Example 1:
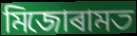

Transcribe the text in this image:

মিজোৰামত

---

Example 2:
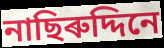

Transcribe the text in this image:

নাছিৰুদ্দিনে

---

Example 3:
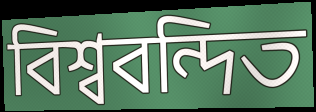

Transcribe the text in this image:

বিশ্ববন্দিত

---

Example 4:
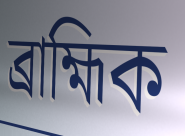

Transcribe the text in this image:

ব্ৰাহ্মিক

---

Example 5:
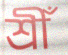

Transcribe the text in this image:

শ্ৰীঁ